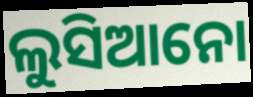
ଲୁସିଆନୋ